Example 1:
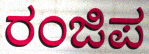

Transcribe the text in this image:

ರಂಜಿಪ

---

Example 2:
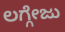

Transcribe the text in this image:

ಲಗ್ಗೇಜು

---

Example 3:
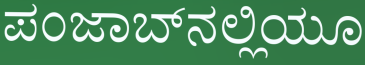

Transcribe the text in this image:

ಪಂಜಾಬ್‌ನಲ್ಲಿಯೂ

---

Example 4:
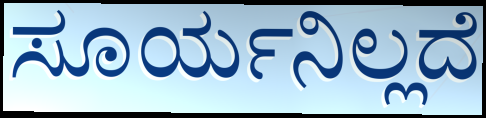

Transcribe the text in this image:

ಸೂರ್ಯನಿಲ್ಲದೆ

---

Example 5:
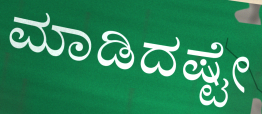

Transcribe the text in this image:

ಮಾಡಿದಷ್ಟೇ